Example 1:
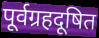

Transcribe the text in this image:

पूर्वग्रहदूषित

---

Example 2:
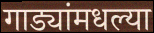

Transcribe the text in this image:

गाड्यांमधल्या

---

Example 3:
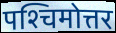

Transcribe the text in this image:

पश्चिमोत्तर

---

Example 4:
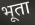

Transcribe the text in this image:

भूता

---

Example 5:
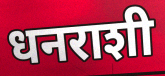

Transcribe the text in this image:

धनराशी